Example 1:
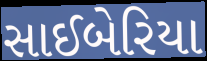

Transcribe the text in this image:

સાઈબેરિયા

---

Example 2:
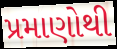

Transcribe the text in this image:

પ્રમાણોથી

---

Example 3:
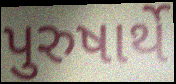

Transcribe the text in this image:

પુરુષાર્થે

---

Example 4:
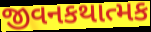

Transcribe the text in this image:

જીવનકથાત્મક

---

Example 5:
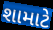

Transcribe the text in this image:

શામાટે